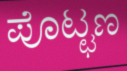
ಪೊಟ್ಟಣ